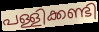
പള്ളിക്കണ്ടി